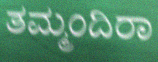
ತಮ್ಮಂದಿರಾ